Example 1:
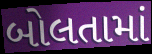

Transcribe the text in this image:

બોલતામાં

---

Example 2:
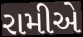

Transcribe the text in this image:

રામીએ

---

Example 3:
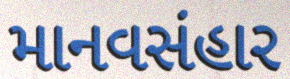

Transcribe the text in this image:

માનવસંહાર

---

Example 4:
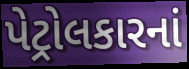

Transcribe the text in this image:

પેટ્રોલકારનાં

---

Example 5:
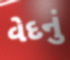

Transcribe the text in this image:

વેદનું